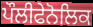
ਪੌਲੀਫੇਨੋਲਿਕ